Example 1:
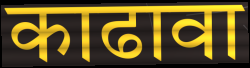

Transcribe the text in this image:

काढावा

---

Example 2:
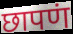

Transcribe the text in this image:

छापणं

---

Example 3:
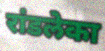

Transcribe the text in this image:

रांडलेका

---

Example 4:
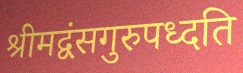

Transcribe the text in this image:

श्रीमद्वंसगुरुपध्दति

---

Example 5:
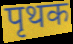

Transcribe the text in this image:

पृथक